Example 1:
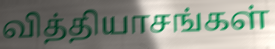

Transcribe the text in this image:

வித்தியாசங்கள்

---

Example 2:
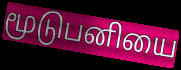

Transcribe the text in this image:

மூடுபனியை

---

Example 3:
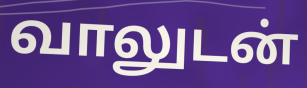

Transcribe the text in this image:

வாலுடன்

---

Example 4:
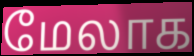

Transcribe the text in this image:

மேலாக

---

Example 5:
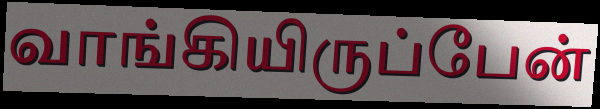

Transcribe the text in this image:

வாங்கியிருப்பேன்